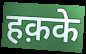
हक़के